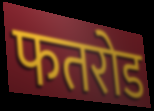
फतरोड